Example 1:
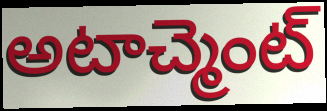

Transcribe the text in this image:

అటాచ్మెంట్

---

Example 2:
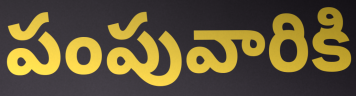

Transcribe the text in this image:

పంపువారికి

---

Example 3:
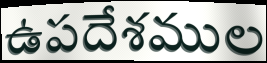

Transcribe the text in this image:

ఉపదేశముల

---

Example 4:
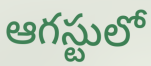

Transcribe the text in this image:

ఆగస్టులో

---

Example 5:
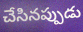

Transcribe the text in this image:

చేసినప్పుడు